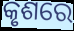
କୃଶରେ